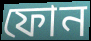
ফোন